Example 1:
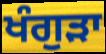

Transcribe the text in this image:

ਖੰਗੁੜਾ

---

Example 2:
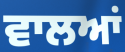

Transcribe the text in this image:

ਵਾਲਆਂ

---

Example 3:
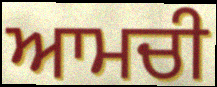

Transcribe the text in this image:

ਆਮਚੀ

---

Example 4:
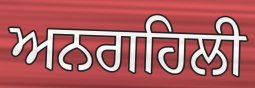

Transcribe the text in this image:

ਅਨਗਹਿਲੀ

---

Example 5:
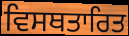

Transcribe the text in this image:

ਵਿਸਥਤਾਰਿਤ